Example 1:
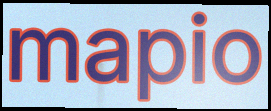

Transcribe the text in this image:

mapio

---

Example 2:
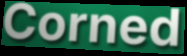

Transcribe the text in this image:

Corned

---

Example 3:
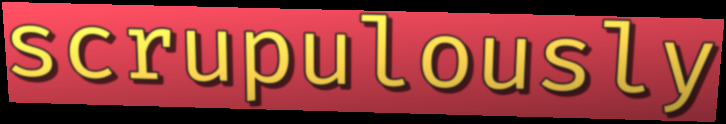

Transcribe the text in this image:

scrupulously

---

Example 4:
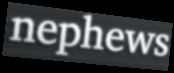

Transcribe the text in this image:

nephews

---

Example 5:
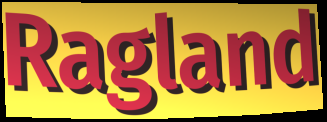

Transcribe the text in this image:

Ragland